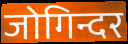
जोगिन्दर